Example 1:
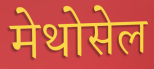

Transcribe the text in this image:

मेथोसेल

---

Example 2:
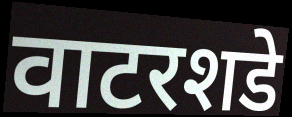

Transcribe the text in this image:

वाटरशडे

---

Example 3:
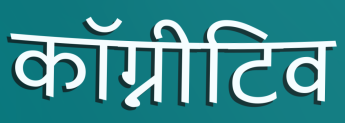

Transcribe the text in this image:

कॉग्नीटिव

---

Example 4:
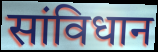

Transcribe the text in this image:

सांविधान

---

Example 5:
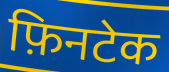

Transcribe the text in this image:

फ़िनटेक